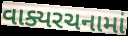
વાક્યરચનામાં